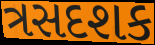
ત્રસદશક